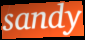
sandy